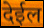
देईल